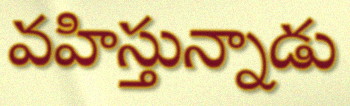
వహిస్తున్నాడు